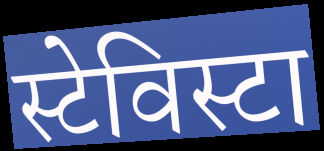
स्टेविस्टा